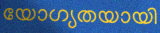
യോഗ്യതയായി